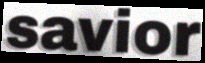
savior